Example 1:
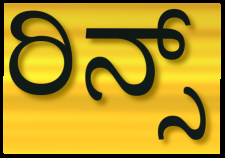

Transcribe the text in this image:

ರಿನ್ಸ್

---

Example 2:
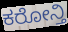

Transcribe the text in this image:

ಕರೋನ್ತಿ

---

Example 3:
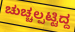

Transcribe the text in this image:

ಚುಚ್ಚಲ್ಪಟ್ಟಿದ್ದ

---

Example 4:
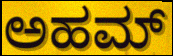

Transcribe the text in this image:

ಅಹಮ್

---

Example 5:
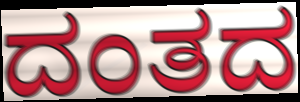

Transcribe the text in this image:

ದಂತದ